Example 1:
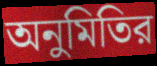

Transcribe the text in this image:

অনুমিতির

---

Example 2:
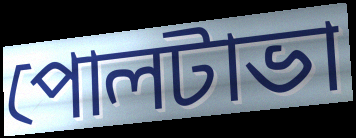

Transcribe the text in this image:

পোলটাভা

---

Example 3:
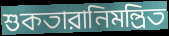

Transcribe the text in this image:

শুকতারানিমন্ত্রিত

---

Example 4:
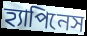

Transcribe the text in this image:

হ্যাপিনেস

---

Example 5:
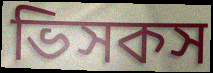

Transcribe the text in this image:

ভিসকস